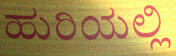
ಹುರಿಯಲ್ಲಿ